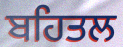
ਬਹਿਤਲ